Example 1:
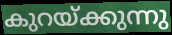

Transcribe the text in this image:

കുറയ്ക്കുന്നു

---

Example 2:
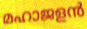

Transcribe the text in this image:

മഹാജളൻ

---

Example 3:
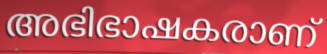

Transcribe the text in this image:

അഭിഭാഷകരാണ്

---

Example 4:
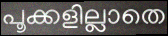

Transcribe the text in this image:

പൂക്കളില്ലാതെ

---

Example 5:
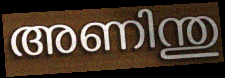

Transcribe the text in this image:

അണിന്തു